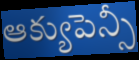
ఆక్యుపెన్సీ